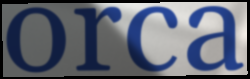
orca